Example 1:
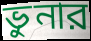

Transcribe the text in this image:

ভুনার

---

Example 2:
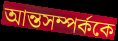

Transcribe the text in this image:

আন্তসম্পর্ককে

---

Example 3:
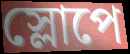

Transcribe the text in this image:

স্লোপে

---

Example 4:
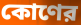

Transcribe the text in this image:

কোণের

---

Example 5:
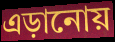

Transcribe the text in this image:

এড়ানোয়